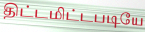
திட்டமிட்டபடியே